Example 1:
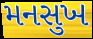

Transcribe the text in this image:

મનસુખ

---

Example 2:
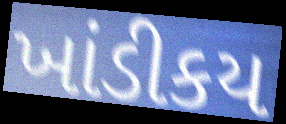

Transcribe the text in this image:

ખાંડીકય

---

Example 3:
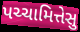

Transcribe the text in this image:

પચ્ચામિત્તેસુ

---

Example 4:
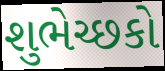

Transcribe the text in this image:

શુભેચ્છકો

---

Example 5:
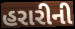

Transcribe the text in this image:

હરારીની